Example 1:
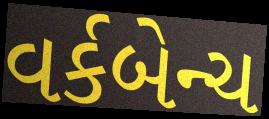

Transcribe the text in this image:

વર્કબેન્ચ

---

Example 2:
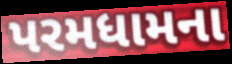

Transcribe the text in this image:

પરમધામના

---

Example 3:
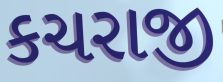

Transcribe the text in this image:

કચરાજી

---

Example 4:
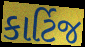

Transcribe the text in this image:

કાર્ટિજ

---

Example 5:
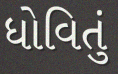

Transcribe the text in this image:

ધોવિતું